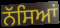
ਨੱਸਿਆਂ